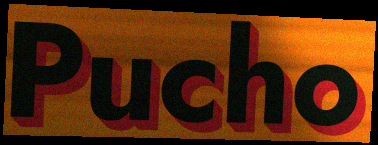
Pucho